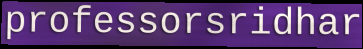
professorsridhar